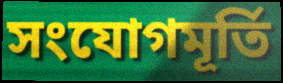
সংযোগমূর্তি